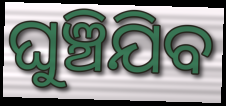
ଘୁଞ୍ଚିଯିବ